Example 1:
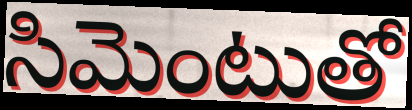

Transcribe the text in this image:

సిమెంటుతో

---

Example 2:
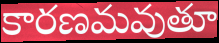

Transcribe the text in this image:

కారణమవుతూ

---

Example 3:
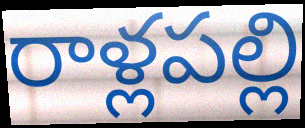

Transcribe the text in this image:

రాళ్లపల్లి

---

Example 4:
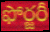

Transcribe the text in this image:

ఫోర్జరీ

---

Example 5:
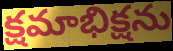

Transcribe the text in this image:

క్షమాభిక్షను